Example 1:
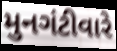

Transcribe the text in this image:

મુનગંટીવારે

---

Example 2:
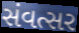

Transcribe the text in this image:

સંવત્સર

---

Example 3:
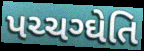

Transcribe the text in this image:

પચ્ચગ્ઘેતિ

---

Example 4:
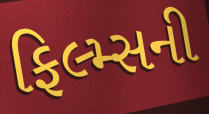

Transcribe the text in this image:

ફિલ્મ્સની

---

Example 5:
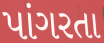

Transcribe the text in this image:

પાંગરતા